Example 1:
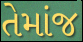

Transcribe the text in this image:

તેમાંજ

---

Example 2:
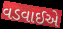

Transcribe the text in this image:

વડવાઈએ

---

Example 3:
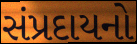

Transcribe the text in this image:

સંપ્રદાયનો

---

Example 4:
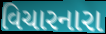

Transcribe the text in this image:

વિચારનારા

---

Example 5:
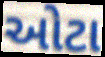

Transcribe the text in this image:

ઓટા